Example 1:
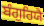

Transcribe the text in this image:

ਬੰਗੁਰਿਯੈ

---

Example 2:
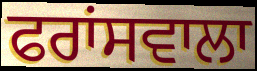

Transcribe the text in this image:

ਫਰਾਂਸਵਾਲਾ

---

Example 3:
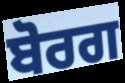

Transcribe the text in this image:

ਬੋਰਗ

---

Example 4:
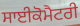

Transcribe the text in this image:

ਸਾਈਕੋਮੈਟਰੀ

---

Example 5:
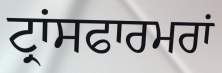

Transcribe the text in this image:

ਟ੍ਰਾਂਸਫਾਰਮਰਾਂ